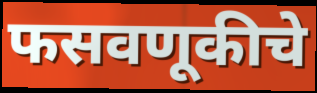
फसवणूकीचे